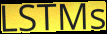
LSTMs